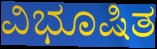
ವಿಭೂಷಿತ